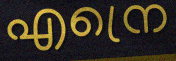
എന്രെ